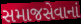
સમાજસેવાનાં